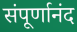
संपूर्णानंद